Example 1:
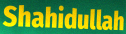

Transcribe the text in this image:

Shahidullah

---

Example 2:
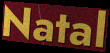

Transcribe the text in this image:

Natal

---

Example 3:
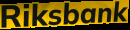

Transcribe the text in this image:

Riksbank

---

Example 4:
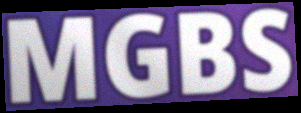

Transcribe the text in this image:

MGBS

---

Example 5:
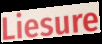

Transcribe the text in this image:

Liesure